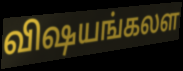
விஷயங்கலள